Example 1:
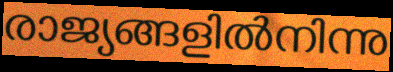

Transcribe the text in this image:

രാജ്യങ്ങളിൽനിന്നു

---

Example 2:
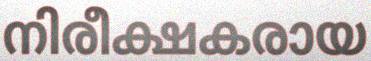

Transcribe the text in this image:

നിരീക്ഷകരായ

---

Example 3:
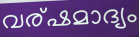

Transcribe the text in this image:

വര്ഷമാദ്യം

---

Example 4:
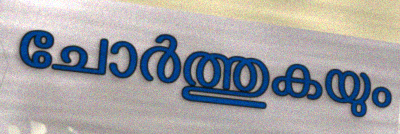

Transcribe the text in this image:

ചോർത്തുകയും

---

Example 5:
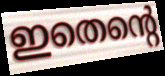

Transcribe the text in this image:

ഇതെന്റെ